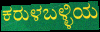
ಕರುಳಬಳ್ಳಿಯ